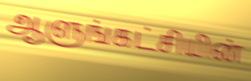
ஆளுங்கட்சியின்